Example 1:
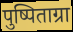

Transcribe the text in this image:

पुष्पिताग्रा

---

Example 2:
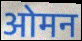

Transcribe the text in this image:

ओमन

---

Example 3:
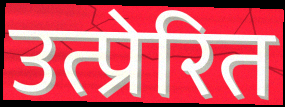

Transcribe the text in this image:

उत्प्रेरित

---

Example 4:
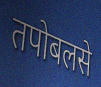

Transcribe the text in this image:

तपोबलसे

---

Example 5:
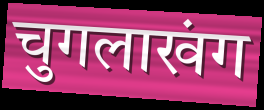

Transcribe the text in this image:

चुगलाखंग